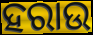
ହରାଉ